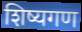
शिष्यगण